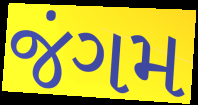
જંગમ